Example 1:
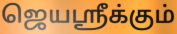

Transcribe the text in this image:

ஜெயஸ்ரீக்கும்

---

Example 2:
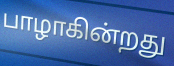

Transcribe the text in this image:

பாழாகின்றது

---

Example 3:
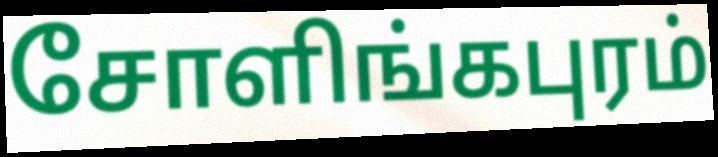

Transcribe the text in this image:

சோளிங்கபுரம்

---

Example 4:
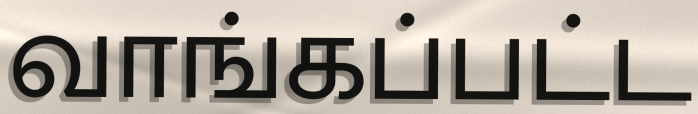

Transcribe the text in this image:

வாங்கப்பட்ட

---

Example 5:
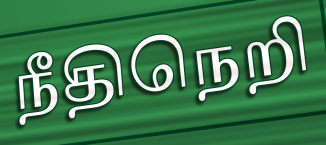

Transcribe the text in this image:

நீதிநெறி